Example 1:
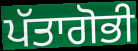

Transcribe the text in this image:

ਪੱਤਾਗੋਭੀ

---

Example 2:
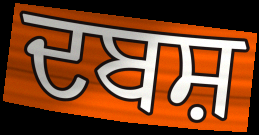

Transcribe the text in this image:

ਦਬਸ਼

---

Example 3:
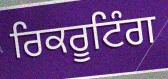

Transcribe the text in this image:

ਰਿਕਰੂਟਿੰਗ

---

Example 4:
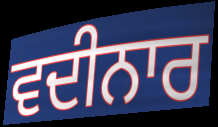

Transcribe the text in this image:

ਵਦੀਨਾਰ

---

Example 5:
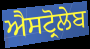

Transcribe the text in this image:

ਐਸਟ੍ਰੋਲੇਬ